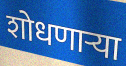
शोधणाऱ्या